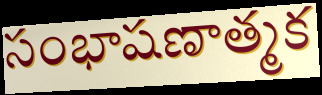
సంభాషణాత్మక